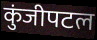
कुंजीपटल